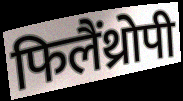
फिलैंथ्रोपी